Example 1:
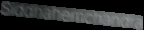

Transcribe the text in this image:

Siddhahemchandra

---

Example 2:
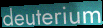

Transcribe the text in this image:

deuterium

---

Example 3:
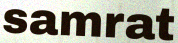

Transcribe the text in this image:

samrat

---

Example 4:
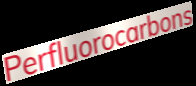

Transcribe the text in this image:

Perfluorocarbons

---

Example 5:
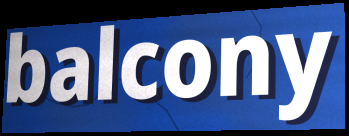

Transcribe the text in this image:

balcony